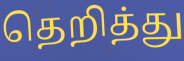
தெறித்து